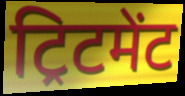
ट्रिटमेंट